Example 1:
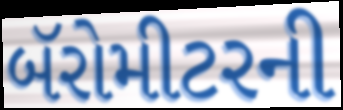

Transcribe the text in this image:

બૅરોમીટરની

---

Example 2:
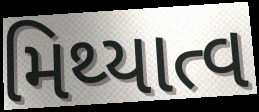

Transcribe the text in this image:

મિથ્યાત્વ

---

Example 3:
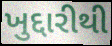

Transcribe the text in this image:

ખુદ્દારીથી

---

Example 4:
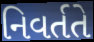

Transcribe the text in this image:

નિવર્તતે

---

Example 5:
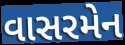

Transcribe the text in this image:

વાસરમેન